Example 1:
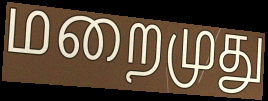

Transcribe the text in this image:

மறைமுது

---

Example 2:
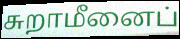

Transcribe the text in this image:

சுறாமீனைப்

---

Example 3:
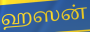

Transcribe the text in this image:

ஹஸன்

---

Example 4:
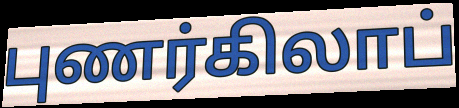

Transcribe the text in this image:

புணர்கிலாப்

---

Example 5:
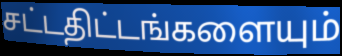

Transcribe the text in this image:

சட்டதிட்டங்களையும்